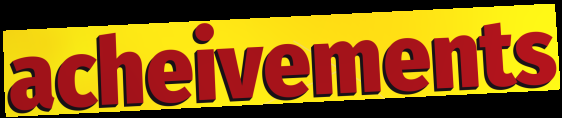
acheivements